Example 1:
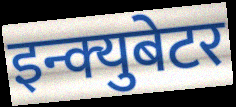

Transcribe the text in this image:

इन्क्‍युबेटर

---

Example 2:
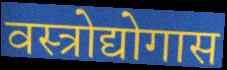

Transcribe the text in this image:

वस्त्रोद्योगास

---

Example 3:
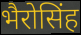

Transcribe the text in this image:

भैरोसिंह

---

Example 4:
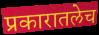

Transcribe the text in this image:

प्रकारातलेच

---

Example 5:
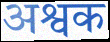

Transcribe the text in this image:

अश्वक